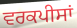
ਵਰਕਪੀਸਾਂ